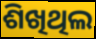
ଶିଖିଥିଲ